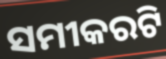
ସମୀକରଟି